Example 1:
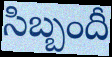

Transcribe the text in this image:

సిబ్బందీ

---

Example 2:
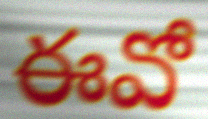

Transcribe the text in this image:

ఈవో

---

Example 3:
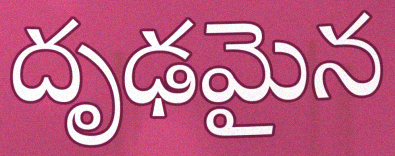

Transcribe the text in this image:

దృఢమైన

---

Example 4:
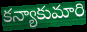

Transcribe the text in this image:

కన్యాకుమారి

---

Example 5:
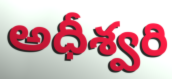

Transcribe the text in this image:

అధీశ్వరి